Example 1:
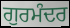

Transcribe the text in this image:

ਗੁਰਮੰਦਰ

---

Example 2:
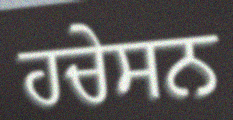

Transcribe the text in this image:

ਹਚੇਸਨ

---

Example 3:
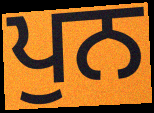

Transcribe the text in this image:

ਪੁਨ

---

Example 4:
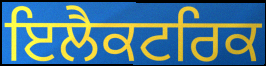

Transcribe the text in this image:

ਇਲੈਕਟਰਿਕ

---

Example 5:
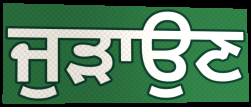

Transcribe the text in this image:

ਜੁੜਾਉਣ